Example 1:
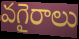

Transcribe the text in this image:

వగైరాలు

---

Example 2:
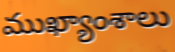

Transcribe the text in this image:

ముఖ్యాంశాలు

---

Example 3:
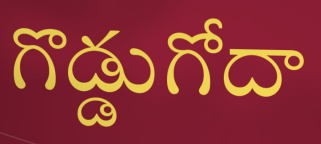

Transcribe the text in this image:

గొడ్డుగోదా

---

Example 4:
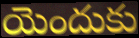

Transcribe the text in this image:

యెందుకు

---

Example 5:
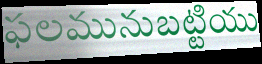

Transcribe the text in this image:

ఫలమునుబట్టియు